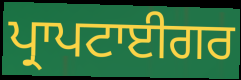
ਪ੍ਰਾਪਟਾਈਗਰ